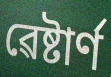
ৱেষ্টাৰ্ণ